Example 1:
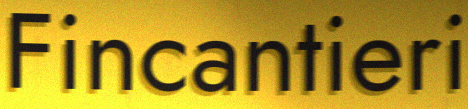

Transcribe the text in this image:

Fincantieri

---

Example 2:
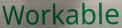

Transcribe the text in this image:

Workable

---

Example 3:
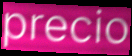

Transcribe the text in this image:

precio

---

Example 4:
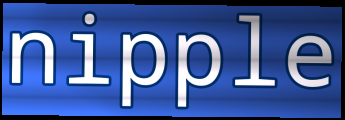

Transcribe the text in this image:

nipple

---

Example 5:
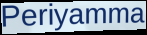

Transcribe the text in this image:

Periyamma